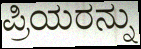
ಪ್ರಿಯರನ್ನು